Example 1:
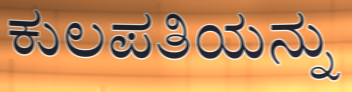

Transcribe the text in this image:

ಕುಲಪತಿಯನ್ನು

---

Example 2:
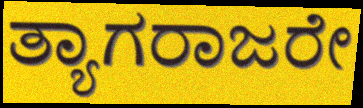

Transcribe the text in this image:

ತ್ಯಾಗರಾಜರೇ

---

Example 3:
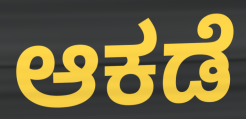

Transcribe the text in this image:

ಆಕಡೆ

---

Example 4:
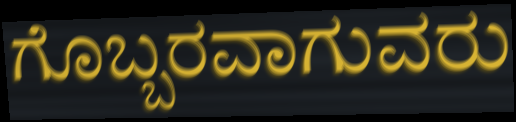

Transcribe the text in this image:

ಗೊಬ್ಬರವಾಗುವರು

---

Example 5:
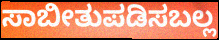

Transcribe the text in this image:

ಸಾಬೀತುಪಡಿಸಬಲ್ಲ